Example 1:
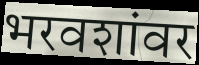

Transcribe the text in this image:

भरवशांवर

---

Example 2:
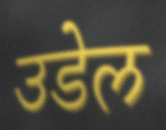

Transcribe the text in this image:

उडेल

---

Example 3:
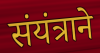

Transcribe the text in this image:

संयंत्राने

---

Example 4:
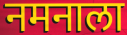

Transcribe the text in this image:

नमनाला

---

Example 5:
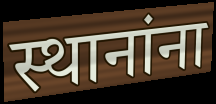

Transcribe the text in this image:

स्थानांना